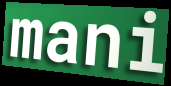
mani